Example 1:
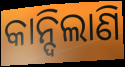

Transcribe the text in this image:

କାନ୍ଦିଲାଣି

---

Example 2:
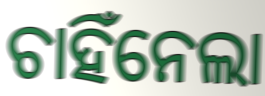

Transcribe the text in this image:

ଚାହିଁନେଲା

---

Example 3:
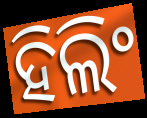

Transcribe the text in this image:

ହିଲିଂ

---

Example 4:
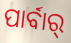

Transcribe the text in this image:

ପାର୍ବାର୍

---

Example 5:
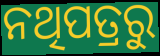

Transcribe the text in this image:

ନଥିପତ୍ରରୁ